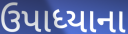
ઉપાધ્યાના